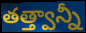
తత్త్వాన్నీ